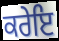
ਕਰੇਇ